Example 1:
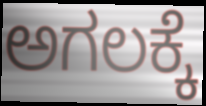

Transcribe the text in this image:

ಅಗಲಕ್ಕೆ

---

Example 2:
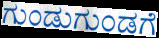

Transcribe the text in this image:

ಗುಂಡುಗುಂಡಗೆ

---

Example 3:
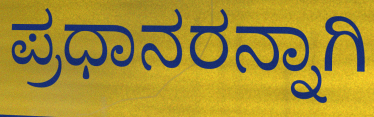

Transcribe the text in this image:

ಪ್ರಧಾನರನ್ನಾಗಿ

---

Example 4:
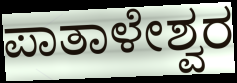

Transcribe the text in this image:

ಪಾತಾಳೇಶ್ವರ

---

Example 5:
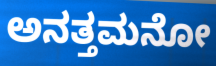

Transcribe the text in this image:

ಅನತ್ತಮನೋ